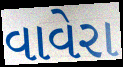
વાવેરા